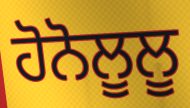
ਹੋਨੋਲੂਲੂ